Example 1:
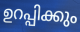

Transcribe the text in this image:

ഉറപ്പിക്കും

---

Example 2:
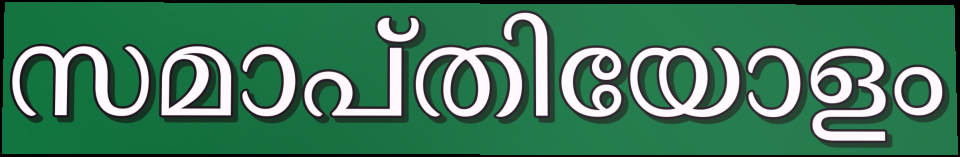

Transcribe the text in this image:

സമാപ്തിയോളം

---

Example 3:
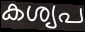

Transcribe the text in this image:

കശ്യപ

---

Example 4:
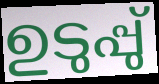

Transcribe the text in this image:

ഉടുപ്പു്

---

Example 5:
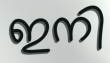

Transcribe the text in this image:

ഇനി